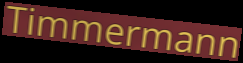
Timmermann